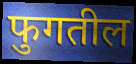
फुगतील